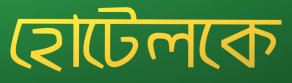
হোটেলকে